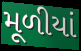
મૂળીયાં